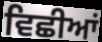
ਵਿਛੀਆਂ